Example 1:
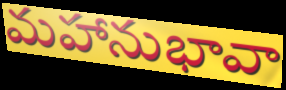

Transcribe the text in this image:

మహానుభావా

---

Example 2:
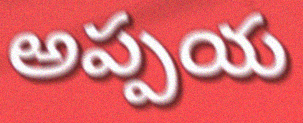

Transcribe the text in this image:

అప్పయ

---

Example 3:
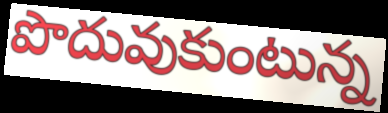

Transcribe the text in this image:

పొదువుకుంటున్న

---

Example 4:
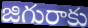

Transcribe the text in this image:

జిగురాకు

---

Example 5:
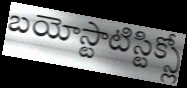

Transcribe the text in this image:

బయోస్టాటిస్టిక్స్లో